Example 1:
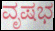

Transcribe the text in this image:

ವೃಷಭ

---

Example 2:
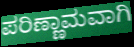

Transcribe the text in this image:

ಪರಿಣ್ಣಾಮವಾಗಿ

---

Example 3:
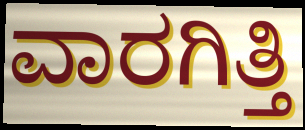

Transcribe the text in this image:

ವಾರಗಿತ್ತಿ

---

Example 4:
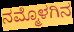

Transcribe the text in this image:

ನಮ್ಮೊಳಗಿನ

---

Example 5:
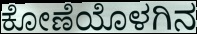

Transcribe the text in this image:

ಕೋಣೆಯೊಳಗಿನ